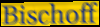
Bischoff